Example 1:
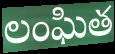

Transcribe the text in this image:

లంఘిత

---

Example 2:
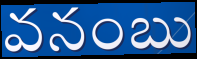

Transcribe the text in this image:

వనంబు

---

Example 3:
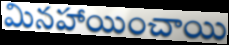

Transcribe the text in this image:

మినహాయించాయి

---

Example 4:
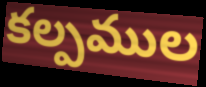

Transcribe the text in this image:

కల్పముల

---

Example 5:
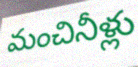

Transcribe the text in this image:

మంచినీళ్లు